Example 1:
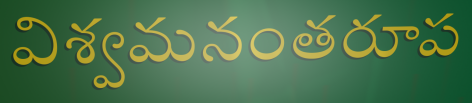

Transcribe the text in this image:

విశ్వమనంతరూప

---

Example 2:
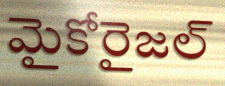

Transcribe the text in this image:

మైకోరైజల్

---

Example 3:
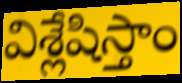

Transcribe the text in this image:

విశ్లేషిస్తాం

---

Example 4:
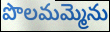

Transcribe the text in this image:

పొలమమ్మెను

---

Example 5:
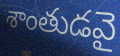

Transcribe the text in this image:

శాంతుడవై